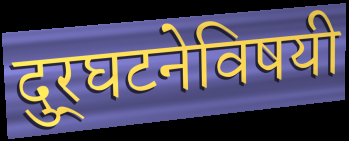
दुर्घटनेविषयी